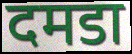
दमडा